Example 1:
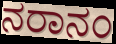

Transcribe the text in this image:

ನರಾನಂ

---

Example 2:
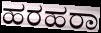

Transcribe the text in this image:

ಹರಹರಾ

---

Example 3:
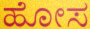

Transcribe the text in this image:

ಹೋಸ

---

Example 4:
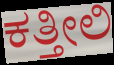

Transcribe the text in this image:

ಕತ್ತೀಲಿ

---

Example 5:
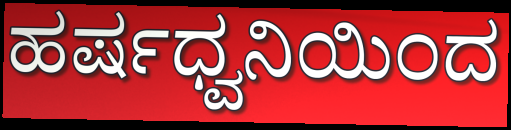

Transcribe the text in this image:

ಹರ್ಷಧ್ವನಿಯಿಂದ